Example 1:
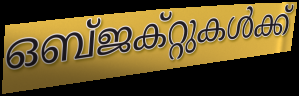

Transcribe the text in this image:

ഒബ്ജക്റ്റുകൾക്ക്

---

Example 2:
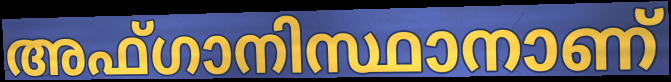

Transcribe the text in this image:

അഫ്ഗാനിസ്ഥാനാണ്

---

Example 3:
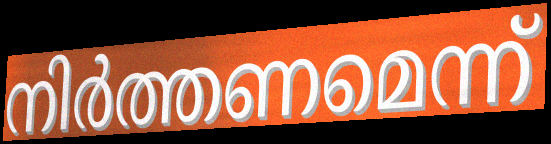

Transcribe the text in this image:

നിർത്തണമെന്ന്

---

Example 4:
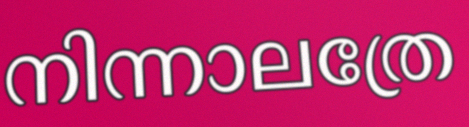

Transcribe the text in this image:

നിന്നാലത്രേ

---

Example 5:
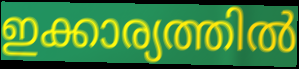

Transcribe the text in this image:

ഇക്കാര്യത്തിൽ